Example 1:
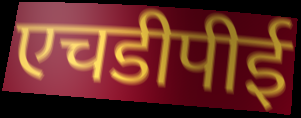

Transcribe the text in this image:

एचडीपीई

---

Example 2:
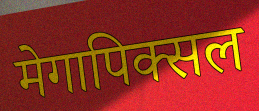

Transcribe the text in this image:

मेगापिक्सल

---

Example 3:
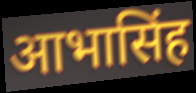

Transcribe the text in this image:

आभासिंह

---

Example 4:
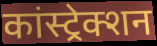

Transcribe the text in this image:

कांस्ट्रेक्शन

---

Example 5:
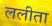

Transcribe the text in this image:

ललीता